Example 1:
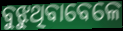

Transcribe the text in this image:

ବୁଝୁଥିବାବେଳେ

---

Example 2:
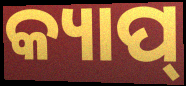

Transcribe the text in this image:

କ୍ୟାପ୍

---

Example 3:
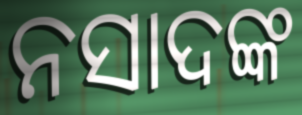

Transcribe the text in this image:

ନସାଦଙ୍କ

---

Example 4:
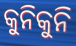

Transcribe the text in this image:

କୁନିକୁନି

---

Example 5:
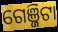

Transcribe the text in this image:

ଗେଞ୍ଜିଟା